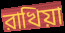
রাখিয়া